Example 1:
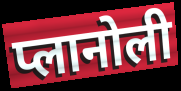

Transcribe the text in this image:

प्लानोली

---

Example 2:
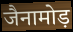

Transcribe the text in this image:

जैनामोड़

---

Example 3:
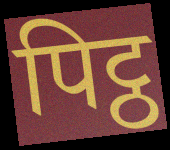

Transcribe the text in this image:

पिट्ठ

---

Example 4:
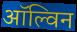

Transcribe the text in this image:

ऑल्विन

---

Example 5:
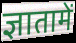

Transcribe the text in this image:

ज्ञातामें